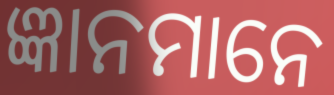
ଜ୍ଞାନମାନେ